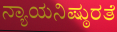
ನ್ಯಾಯನಿಷ್ಠುರತೆ